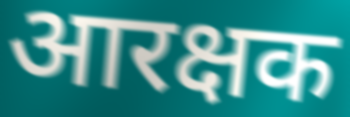
आरक्षक